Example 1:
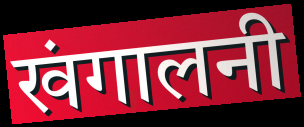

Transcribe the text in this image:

खंगालनी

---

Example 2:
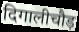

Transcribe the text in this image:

दिगालीचौड़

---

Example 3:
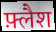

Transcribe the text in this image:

फ़्लैश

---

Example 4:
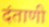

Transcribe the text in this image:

दंताणी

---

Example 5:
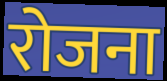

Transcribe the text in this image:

रोजना